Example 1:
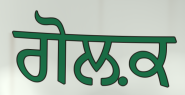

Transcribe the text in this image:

ਗੋਲ਼ਕ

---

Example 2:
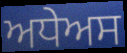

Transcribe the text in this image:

ਅਧੇਅਸ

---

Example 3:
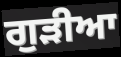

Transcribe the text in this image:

ਗੁਡ਼ੀਆ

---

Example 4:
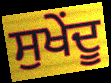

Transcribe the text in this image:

ਸੁਖੇਂਦੂ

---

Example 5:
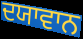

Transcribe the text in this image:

ਦਯਾਵਾਨ